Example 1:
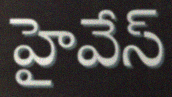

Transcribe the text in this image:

హైవేస్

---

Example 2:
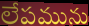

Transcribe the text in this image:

లేపమును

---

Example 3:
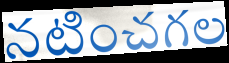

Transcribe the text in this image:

నటించగల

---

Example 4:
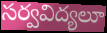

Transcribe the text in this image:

సర్వవిద్యలూ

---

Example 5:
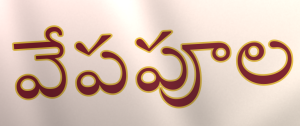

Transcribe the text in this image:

వేపపూల